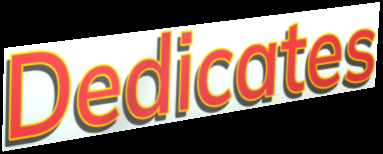
Dedicates